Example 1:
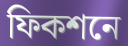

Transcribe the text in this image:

ফিকশনে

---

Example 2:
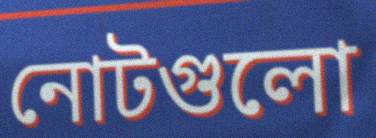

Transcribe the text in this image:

নোটগুলো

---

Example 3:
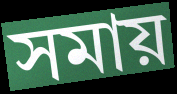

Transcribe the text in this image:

সমায়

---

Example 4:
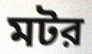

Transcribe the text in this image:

মটর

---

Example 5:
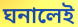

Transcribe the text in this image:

ঘনালেই